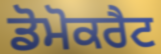
ਡੋਮੋਕਰੈਟ